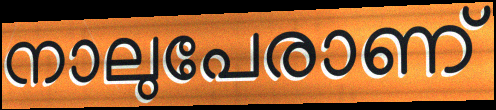
നാലുപേരാണ്